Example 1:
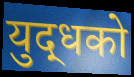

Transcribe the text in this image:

युद्धको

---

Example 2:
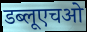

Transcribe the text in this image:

डब्लूएचओ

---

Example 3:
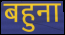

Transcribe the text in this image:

बहुना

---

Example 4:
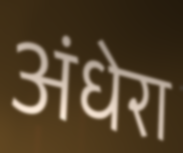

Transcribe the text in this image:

अंधेरा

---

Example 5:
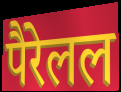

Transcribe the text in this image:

पैरेलल